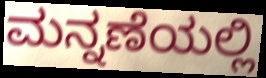
ಮನ್ನಣೆಯಲ್ಲಿ